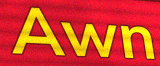
Awn